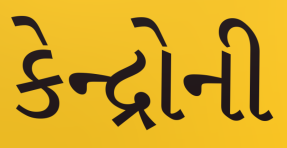
કેન્દ્રોની